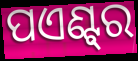
ପଏଣ୍ଟ୍‌ର